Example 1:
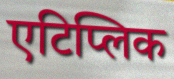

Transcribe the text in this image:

एटिप्लिक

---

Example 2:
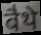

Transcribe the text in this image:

बैथे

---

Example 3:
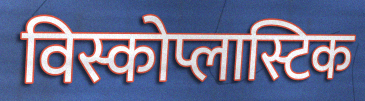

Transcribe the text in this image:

विस्कोप्लास्टिक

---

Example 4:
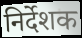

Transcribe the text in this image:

निर्देशक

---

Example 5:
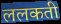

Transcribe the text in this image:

ललकती